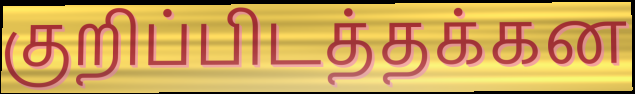
குறிப்பிடத்தக்கன